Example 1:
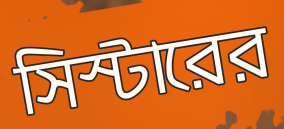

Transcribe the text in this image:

সিস্টারের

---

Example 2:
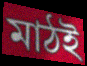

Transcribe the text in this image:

মাঠই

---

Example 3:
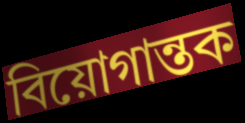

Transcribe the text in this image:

বিয়োগান্তক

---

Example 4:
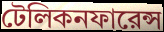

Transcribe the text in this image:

টেলিকনফারেন্স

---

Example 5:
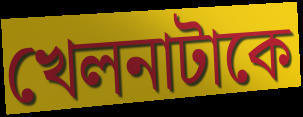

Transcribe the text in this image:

খেলনাটাকে